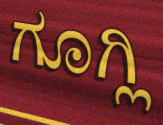
ಗೂಗ್ಲಿ